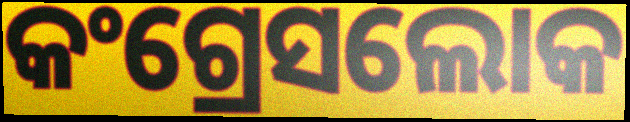
କଂଗ୍ରେସଲୋକ